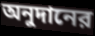
অনুদানের